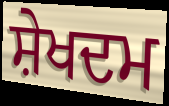
ਸ਼ੇਖਦਮ